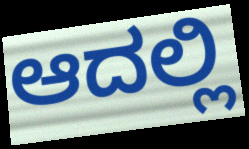
ಆದಲ್ಲಿ